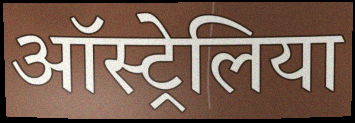
ऑस्‍ट्रेलिया